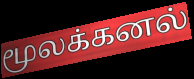
மூலக்கனல்